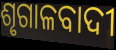
ଶୃଗାଳବାଦୀ